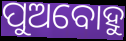
ପୁଅବୋହୁ